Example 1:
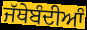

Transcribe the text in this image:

ਜੱਥੇਬੰਦੀਆੰ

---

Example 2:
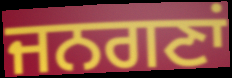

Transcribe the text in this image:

ਜਨਗਣਾਂ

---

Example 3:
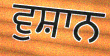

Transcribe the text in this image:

ਵੁਸ਼ਾਨ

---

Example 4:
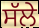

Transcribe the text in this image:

ਸੱਲੇ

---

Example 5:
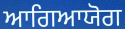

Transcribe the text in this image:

ਆਗਿਆਯੋਗ